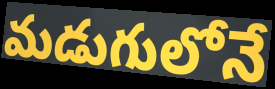
మడుగులోనే